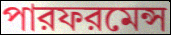
পারফরমেন্স